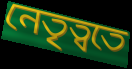
নেতৃত্বতে